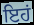
ਇਹਂ